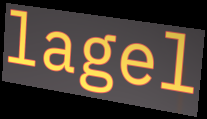
lagel